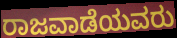
ರಾಜವಾಡೆಯವರು